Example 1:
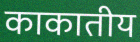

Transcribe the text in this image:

काकातीय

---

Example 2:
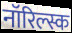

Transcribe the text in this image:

नॉरिल्स्क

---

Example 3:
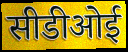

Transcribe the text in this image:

सीडीओई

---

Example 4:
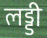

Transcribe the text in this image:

लड्डी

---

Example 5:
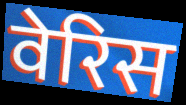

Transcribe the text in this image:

वेरिस